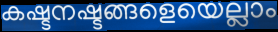
കഷ്ടനഷ്ടങ്ങളെയെല്ലാം